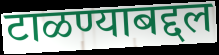
टाळण्याबद्दल